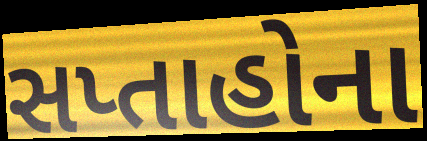
સપ્તાહોના